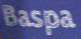
Baspa